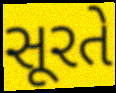
સૂરતે